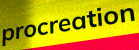
procreation